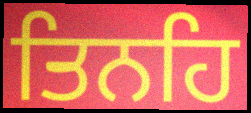
ਤਿਨਹਿ